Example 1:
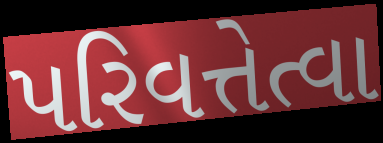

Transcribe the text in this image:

પરિવત્તેત્વા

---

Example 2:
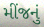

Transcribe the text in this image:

મીંજનું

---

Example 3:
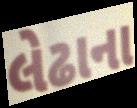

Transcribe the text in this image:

લેઢાના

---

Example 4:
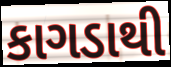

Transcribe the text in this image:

કાગડાથી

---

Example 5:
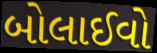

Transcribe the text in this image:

બોલાઈવો